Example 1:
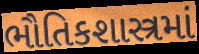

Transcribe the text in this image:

ભૌતિકશાસ્ત્રમાં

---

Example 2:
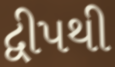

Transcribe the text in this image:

દ્વીપથી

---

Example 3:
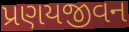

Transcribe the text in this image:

પ્રણયજીવન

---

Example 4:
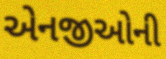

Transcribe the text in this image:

એનજીઓની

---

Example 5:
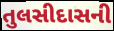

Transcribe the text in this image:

તુલસીદાસની